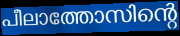
പീലാത്തോസിന്റെ